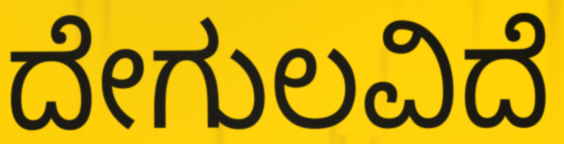
ದೇಗುಲವಿದೆ